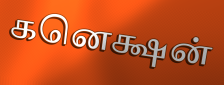
கனெக்ஷன்